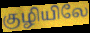
குழியிலே